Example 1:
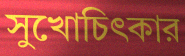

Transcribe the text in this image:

সুখোচিৎকার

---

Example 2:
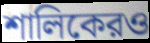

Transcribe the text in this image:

শালিকেরও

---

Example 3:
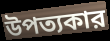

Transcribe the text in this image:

উপত্যকার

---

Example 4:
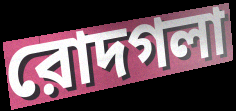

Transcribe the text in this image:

রোদগলা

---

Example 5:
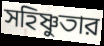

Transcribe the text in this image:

সহিষ্ণুতার